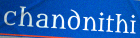
chandnithi